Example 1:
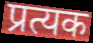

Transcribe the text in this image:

प्रत्यक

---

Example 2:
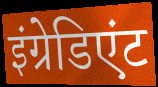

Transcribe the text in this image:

इंग्रेडिएंट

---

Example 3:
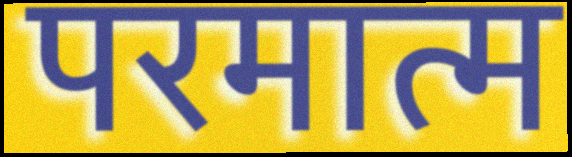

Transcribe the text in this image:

परमात्म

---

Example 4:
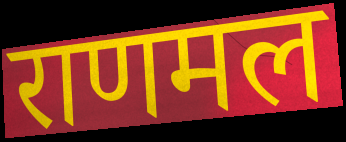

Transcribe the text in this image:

राणमल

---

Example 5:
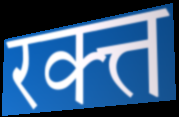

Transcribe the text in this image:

रक्त्त